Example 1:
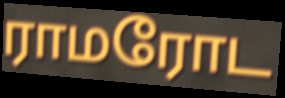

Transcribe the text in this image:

ராமரோட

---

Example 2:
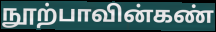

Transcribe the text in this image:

நூற்பாவின்கண்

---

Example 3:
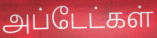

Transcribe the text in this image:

அப்டேட்கள்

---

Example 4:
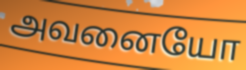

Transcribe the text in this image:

அவனையோ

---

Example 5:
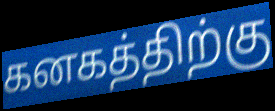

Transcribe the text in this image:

கனகத்திற்கு